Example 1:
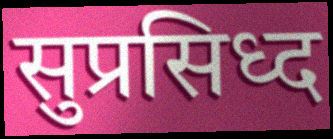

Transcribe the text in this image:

सुप्रसिध्द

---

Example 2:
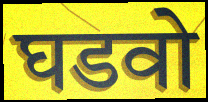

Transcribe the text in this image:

घडवो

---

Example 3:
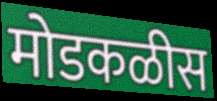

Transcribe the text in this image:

मोडकळीस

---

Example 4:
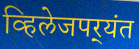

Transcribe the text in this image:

व्हिलेजपर्यंत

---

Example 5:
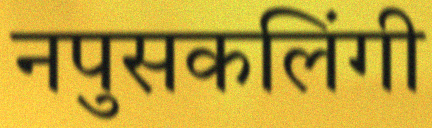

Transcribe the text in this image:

नपुसकलिंगी